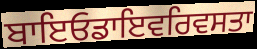
ਬਾਇਓਡਾਇਵਰਿਵਸਤਾ